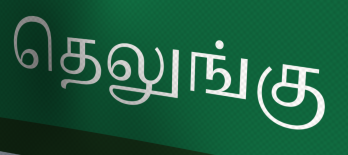
தெலுங்கு